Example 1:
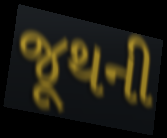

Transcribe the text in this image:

જૂથની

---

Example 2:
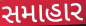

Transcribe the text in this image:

સમાહાર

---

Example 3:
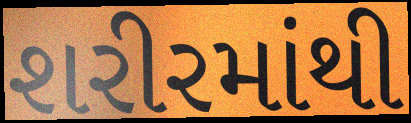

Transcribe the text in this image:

શરીરમાંથી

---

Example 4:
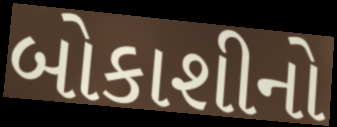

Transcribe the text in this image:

બોકાશીનો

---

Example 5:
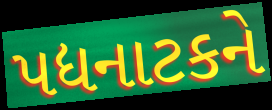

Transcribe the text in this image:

પદ્યનાટકને